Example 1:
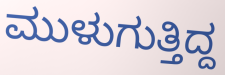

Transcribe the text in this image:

ಮುಳುಗುತ್ತಿದ್ದ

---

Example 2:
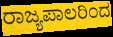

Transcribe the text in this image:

ರಾಜ್ಯಪಾಲರಿಂದ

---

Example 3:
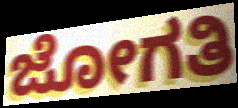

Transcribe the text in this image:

ಜೋಗತಿ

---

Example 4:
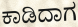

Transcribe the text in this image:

ಕಾಡಿದಾಗ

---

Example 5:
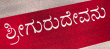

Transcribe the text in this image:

ಶ್ರೀಗುರುದೇವನು